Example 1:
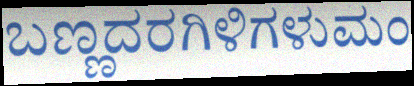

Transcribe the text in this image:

ಬಣ್ಣದರಗಿಳಿಗಳುಮಂ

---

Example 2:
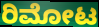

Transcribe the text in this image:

ರಿಮೋಟ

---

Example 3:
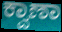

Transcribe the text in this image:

ಕ್ವಾಣಾ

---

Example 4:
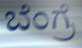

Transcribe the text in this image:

ಬೆಂಗ್ರೆ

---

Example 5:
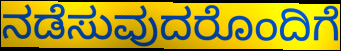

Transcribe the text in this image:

ನಡೆಸುವುದರೊಂದಿಗೆ